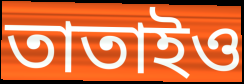
তাতাইও